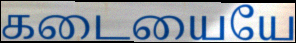
கடையையே